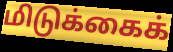
மிடுக்கைக்